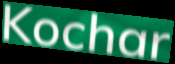
Kochar